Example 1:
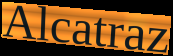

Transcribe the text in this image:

Alcatraz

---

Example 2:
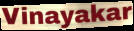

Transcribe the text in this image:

Vinayakar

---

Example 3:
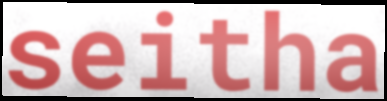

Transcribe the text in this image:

seitha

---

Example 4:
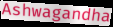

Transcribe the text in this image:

Ashwagandha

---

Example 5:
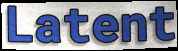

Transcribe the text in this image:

Latent